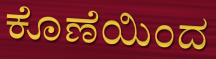
ಕೊಣೆಯಿಂದ